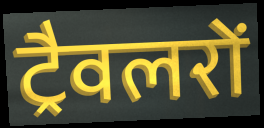
ट्रैवलरों